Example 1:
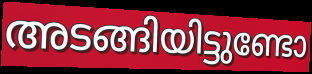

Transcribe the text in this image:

അടങ്ങിയിട്ടുണ്ടോ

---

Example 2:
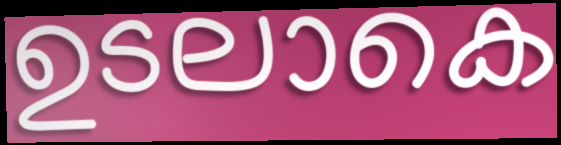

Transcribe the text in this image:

ഉടലാകെ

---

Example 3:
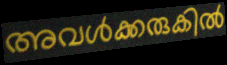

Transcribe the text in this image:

അവൾക്കരുകിൽ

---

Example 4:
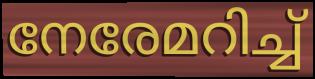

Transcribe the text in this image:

നേരേമറിച്ച്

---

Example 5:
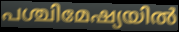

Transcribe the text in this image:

പശ്ചിമേഷ്യയിൽ